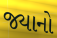
જ્યાનો